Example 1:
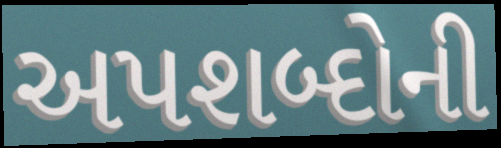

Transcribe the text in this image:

અપશબ્દોની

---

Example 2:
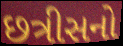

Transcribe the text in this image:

છત્રીસનો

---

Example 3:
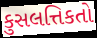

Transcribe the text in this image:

કુસલત્તિકતો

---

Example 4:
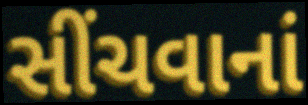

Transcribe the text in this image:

સીંચવાનાં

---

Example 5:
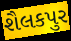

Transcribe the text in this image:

શૈલકપુર